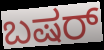
ಬಷರ್